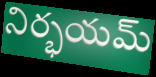
నిర్భయమ్